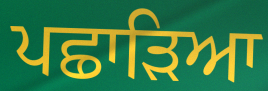
ਪਛਾੜਿਆ